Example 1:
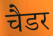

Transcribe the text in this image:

चैडर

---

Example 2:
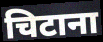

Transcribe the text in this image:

चिटाना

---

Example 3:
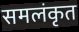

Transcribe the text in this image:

समलंकृत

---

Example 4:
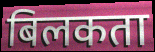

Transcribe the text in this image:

बिलकता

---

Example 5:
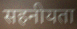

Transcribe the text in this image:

सहनीयता